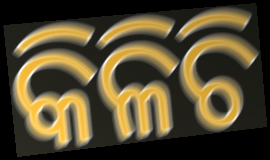
କିଳିଚି